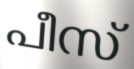
പീസ്